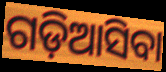
ଗଡ଼ିଆସିବା